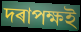
দৰাপক্ষই